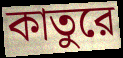
কাতুরে